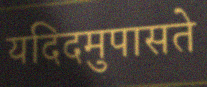
यदिदमुपासते